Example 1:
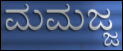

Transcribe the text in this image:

ಮಮಜ್ಜ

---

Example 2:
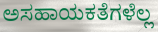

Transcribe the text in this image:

ಅಸಹಾಯಕತೆಗಳೆಲ್ಲ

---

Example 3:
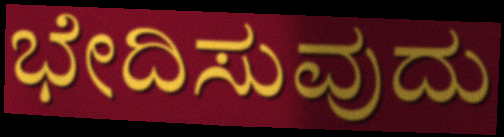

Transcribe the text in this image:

ಭೇದಿಸುವುದು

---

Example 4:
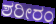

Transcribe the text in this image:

ಶರೀರಂ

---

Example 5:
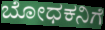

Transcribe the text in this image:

ಬೋಧಕನಿಗೆ